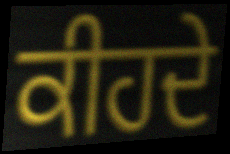
ਕੀਹਦੇ